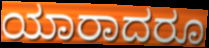
ಯಾರಾದರೂ